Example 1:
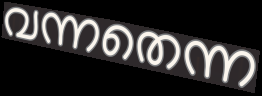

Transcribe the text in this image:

വന്നതെന്ന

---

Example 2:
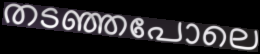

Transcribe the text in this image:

തടഞ്ഞപോലെ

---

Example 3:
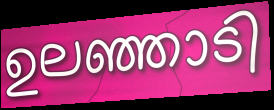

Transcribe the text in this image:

ഉലഞ്ഞാടി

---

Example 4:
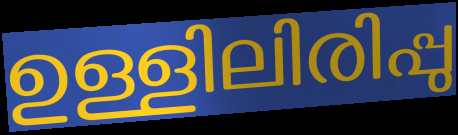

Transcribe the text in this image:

ഉള്ളിലിരിപ്പു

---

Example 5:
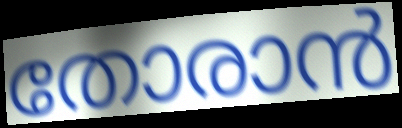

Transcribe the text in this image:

തോരാൻ